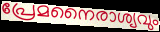
പ്രേമനൈരാശ്യവും